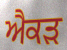
ਐਕੜ